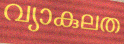
വ്യാകുലത